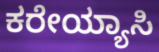
ಕರೇಯ್ಯಾಸಿ